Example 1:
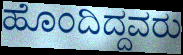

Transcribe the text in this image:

ಹೊಂದಿದ್ದವರು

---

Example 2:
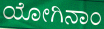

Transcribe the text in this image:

ಯೋಗಿನಾಂ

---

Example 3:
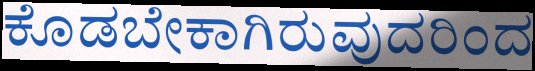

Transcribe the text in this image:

ಕೊಡಬೇಕಾಗಿರುವುದರಿಂದ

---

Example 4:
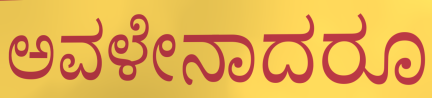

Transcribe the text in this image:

ಅವಳೇನಾದರೂ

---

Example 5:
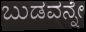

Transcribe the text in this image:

ಬುಡವನ್ನೇ